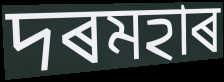
দৰমহাৰ